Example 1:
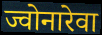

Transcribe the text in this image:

ज्वोनारेवा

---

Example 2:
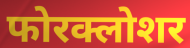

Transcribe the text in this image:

फोरक्लोशर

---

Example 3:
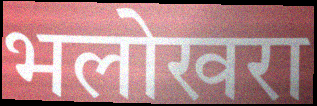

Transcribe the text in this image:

भलोखरा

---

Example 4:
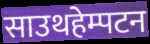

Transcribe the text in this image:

साउथहेम्पटन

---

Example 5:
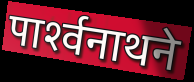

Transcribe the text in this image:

पार्श्वनाथने